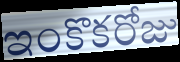
ఇంకొకరోజు